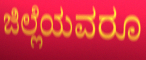
ಜಿಲ್ಲೆಯವರೂ